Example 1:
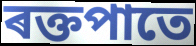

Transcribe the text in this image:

ৰক্তপাতে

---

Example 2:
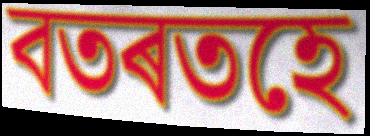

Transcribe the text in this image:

বতৰতহে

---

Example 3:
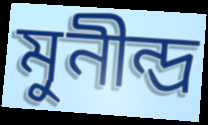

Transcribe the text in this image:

মুনীন্দ্ৰ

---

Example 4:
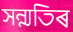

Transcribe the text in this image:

সন্মতিৰ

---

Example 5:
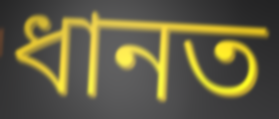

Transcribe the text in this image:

ধানত